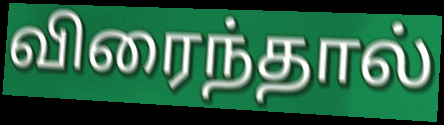
விரைந்தால்